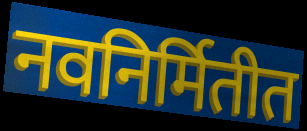
नवनिर्मितीत